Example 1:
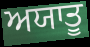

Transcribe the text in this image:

ਅਯਾਤੂ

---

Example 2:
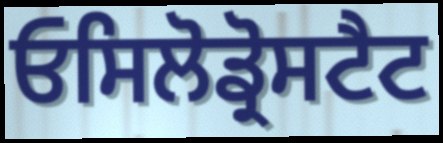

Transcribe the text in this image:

ਓਸਿਲੋਡ੍ਰੋਸਟੈਟ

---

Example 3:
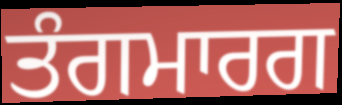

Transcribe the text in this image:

ਤੰਗਮਾਰਗ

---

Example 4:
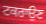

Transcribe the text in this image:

ਟਕਰਾਉਣ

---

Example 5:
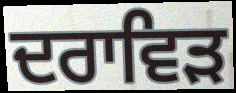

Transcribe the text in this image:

ਦਰਾਵਿੜ